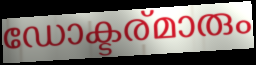
ഡോക്ടര്മാരും